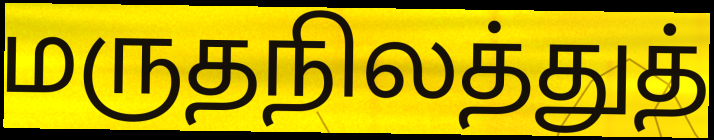
மருதநிலத்துத்